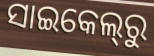
ସାଇକେଲ୍‌ରୁ